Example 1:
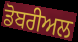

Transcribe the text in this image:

ਡੋਬਰੀਅਲ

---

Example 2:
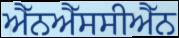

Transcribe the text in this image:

ਐੱਨਐੱਸਸੀਐੱਨ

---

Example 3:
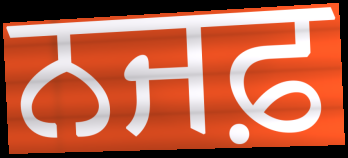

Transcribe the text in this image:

ਨਜਫ਼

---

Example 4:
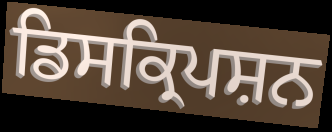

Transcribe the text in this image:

ਡਿਸਕ੍ਰਿਪਸ਼ਨ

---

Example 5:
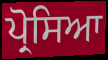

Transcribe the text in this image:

ਪ੍ਰੋਸਿਆ